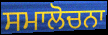
ਸਮਾਲੋਚਨਾ